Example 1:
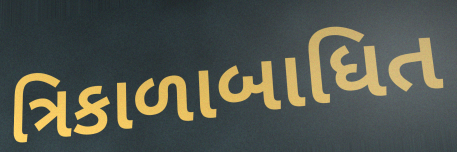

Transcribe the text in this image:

ત્રિકાળાબાધિત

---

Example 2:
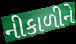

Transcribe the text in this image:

નીકાળીને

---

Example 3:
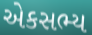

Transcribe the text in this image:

એકસભ્ય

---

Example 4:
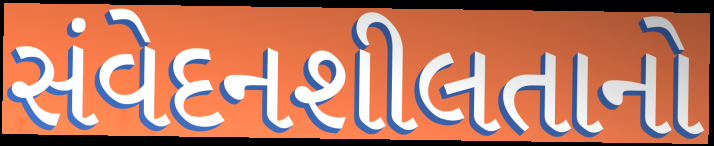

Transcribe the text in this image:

સંવેદનશીલતાનો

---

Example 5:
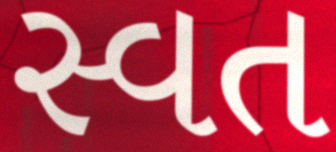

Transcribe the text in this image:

સ્વત